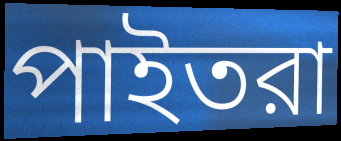
পাইতরা